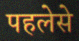
पहलेसे